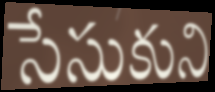
సేసుకుని